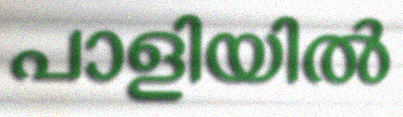
പാളിയിൽ